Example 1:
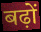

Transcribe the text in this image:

बढ़ों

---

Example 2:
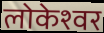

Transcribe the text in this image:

लोकेश्वर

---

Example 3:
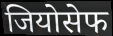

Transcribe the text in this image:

जियोसेफ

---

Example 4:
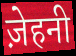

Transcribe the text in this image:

ज़ेहनी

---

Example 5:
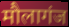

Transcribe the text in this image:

मौलागंज